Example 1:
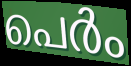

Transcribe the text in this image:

പെർം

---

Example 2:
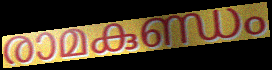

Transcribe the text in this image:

രാമകുണ്ഡം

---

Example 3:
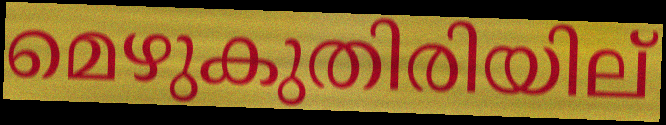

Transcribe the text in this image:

മെഴുകുതിരിയില്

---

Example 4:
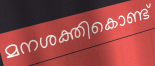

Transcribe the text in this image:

മനശക്തികൊണ്ട്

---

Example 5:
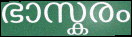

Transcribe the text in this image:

ഭാസ്കരം